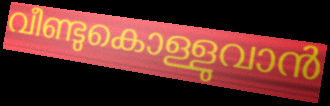
വീണ്ടുകൊള്ളുവാൻ